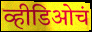
व्हीडिओचं